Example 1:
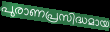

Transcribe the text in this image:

പുരാണപ്രസിദ്ധമായ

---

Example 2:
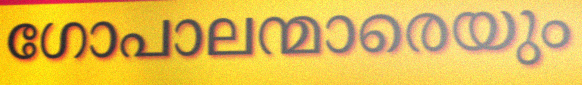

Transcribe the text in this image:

ഗോപാലന്മാരെയും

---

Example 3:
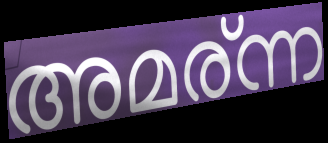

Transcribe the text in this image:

അമര്ന്ന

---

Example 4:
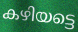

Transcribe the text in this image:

കഴിയട്ടെ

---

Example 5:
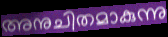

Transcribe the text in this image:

അനുചിതമാകുന്നു